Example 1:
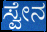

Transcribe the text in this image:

ಸ್ವೇನ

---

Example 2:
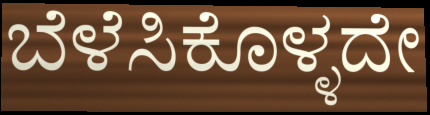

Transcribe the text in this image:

ಬೆಳೆಸಿಕೊಳ್ಳದೇ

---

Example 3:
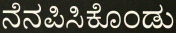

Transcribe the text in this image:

ನೆನಪಿಸಿಕೊಂಡು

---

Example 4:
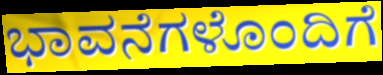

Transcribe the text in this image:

ಭಾವನೆಗಳೊಂದಿಗೆ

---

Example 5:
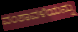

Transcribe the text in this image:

ವಂಶಾವಳಿಯನ್ನು